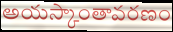
అయస్కాంతావరణం